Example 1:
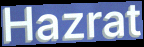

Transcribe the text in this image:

Hazrat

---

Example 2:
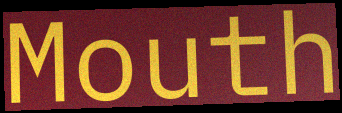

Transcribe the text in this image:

Mouth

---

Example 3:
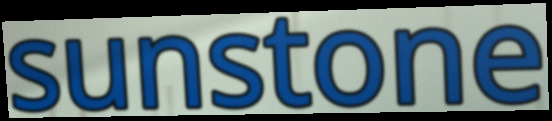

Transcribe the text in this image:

sunstone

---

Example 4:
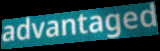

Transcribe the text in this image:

advantaged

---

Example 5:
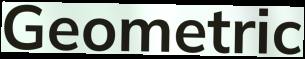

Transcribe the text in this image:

Geometric